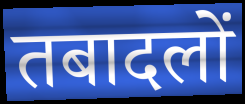
तबादलों